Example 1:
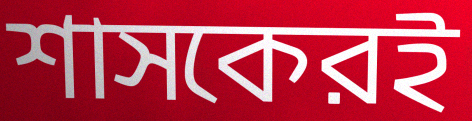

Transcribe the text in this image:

শাসকেরই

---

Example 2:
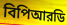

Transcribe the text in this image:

বিপিআরডি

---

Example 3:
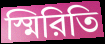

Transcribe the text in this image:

স্মিরিতি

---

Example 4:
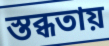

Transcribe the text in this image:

স্তব্ধতায়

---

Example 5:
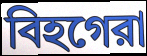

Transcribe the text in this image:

বিহগেরা